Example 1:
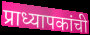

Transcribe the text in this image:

प्राध्यापकांची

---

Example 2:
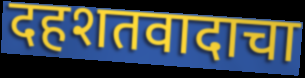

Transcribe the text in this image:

दहशतवादाचा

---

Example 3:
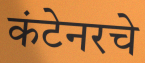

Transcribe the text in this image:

कंटेनरचे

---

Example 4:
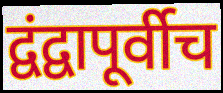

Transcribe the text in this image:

द्वंद्वापूर्वीच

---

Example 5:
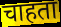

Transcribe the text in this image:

चाहता